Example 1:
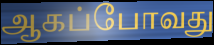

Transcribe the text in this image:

ஆகப்போவது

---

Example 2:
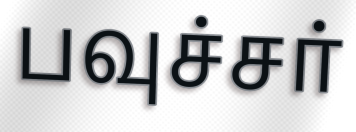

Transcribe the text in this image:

பவுச்சர்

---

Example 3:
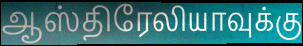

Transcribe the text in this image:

ஆஸ்திரேலியாவுக்கு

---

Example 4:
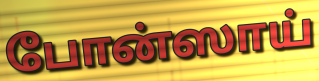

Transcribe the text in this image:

போன்ஸாய்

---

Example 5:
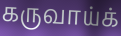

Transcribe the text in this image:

கருவாய்க்